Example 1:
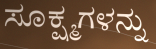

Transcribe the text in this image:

ಸೂಕ್ಷ್ಮಗಳನ್ನು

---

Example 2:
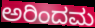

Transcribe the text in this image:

ಅರಿಂದಮ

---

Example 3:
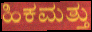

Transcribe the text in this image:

ಹಿಕಮತ್ತು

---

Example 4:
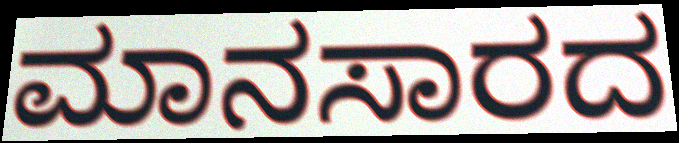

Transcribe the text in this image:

ಮಾನಸಾರದ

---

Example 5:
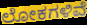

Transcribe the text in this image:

ಲೋಕಗಳಿವೆ